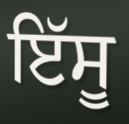
ਇੱਸੂ